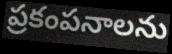
ప్రకంపనాలను